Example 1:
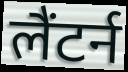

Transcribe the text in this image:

लैंटर्न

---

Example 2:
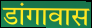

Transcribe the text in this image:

डांगावास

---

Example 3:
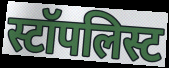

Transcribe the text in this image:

स्टॉपलिस्ट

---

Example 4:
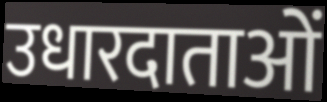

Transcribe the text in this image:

उधारदाताओं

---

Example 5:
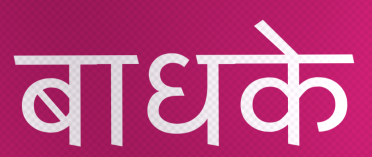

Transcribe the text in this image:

बाधके